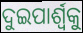
ଦୁଇପାର୍ଶ୍ବକୁ